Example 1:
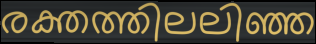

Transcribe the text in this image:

രക്തത്തിലലിഞ്ഞ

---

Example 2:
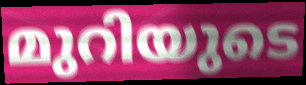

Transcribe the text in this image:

മുറിയുടെ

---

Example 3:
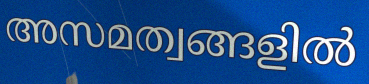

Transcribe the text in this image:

അസമത്വങ്ങളിൽ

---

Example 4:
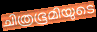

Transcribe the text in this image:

ചിത്രഭൂമിയുടെ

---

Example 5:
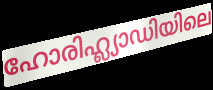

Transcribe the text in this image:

ഹോരിഹ്ല്യാഡിയിലെ